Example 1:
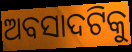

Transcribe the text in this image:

ଅବସାଦଟିକୁ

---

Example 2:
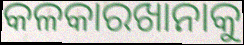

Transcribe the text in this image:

କଳକାରଖାନାକୁ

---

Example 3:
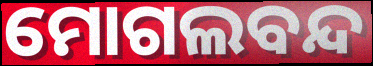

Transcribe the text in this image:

ମୋଗଲବନ୍ଦ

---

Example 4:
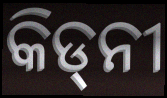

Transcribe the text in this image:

କିଡ୍‍ନୀ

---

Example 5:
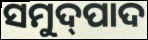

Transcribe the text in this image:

ସମୁଦ୍‌ପାଦ